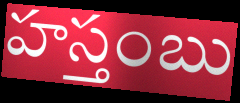
హస్తంబు